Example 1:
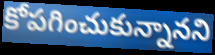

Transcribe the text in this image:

కోపగించుకున్నానని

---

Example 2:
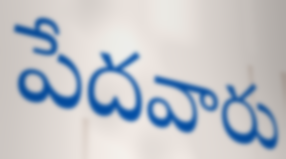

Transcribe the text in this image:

పేదవారు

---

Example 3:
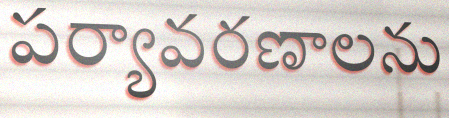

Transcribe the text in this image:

పర్యావరణాలను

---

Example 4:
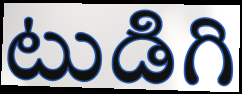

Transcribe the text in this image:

టుడిగి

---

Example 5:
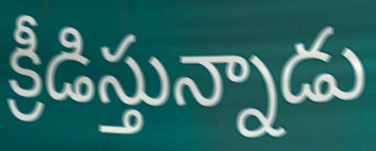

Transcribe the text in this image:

క్రీడిస్తున్నాడు